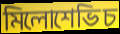
মিলোশেভিচ